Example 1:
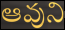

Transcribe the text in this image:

ఆవుని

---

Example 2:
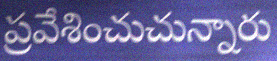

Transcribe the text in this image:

ప్రవేశించుచున్నారు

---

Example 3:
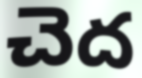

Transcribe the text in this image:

చెద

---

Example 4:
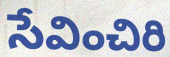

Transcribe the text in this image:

సేవించిరి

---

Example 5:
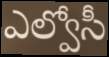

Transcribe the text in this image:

ఎల్వోసీ